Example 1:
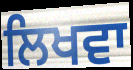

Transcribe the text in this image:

ਲਿਖਵਾ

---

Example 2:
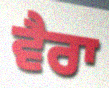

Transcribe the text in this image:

ਵੈਰਾ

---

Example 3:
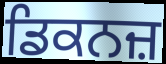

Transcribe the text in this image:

ਡਿਕਨਜ਼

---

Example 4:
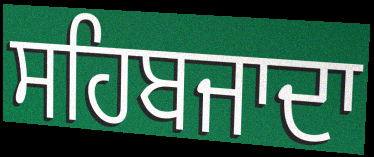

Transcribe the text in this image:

ਸਹਿਬਜਾਦਾ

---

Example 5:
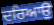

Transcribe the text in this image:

ਦਰਿਆਉ